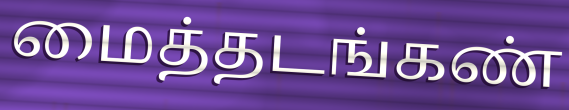
மைத்தடங்கண்